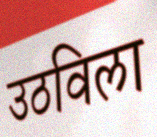
उठविला